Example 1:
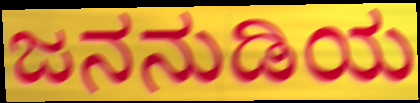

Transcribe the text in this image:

ಜನನುಡಿಯ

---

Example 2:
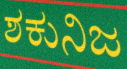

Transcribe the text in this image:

ಶಕುನಿಜ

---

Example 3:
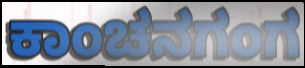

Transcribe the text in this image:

ಕಾಂಚನಗಂಗ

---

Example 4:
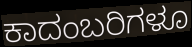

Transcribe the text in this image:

ಕಾದಂಬರಿಗಳೂ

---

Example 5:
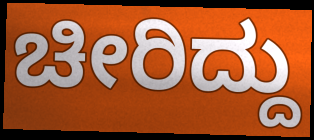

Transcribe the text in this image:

ಚೀರಿದ್ದು